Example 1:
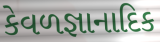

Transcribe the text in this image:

કેવળજ્ઞાનાદિક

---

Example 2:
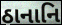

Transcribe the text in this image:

ઠાનાનિ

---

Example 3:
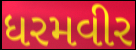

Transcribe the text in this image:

ધરમવીર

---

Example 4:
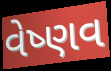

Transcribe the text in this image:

વેષ્ણવ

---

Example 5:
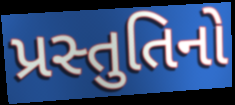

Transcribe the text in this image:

પ્રસ્તુતિનો